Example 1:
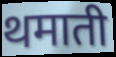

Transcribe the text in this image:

थमाती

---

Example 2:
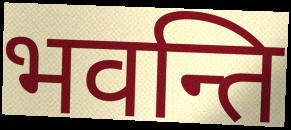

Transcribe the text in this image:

भवन्ति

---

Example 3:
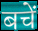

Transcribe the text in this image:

बचें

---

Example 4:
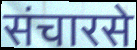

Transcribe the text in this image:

संचारसे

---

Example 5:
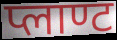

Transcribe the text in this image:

प्लाण्ट